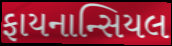
ફાયનાન્સિયલ